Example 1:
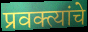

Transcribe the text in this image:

प्रवक्त्यांचे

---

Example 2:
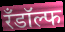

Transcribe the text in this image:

रँडॉल्फ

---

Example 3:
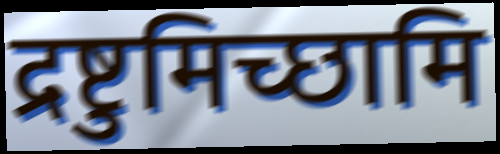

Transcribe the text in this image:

द्रष्टुमिच्छामि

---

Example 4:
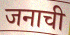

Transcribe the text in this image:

जनाची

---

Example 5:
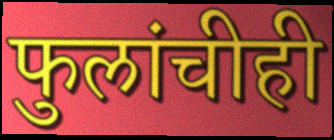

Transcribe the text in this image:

फुलांचीही